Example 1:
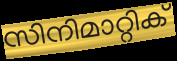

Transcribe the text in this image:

സിനിമാറ്റിക്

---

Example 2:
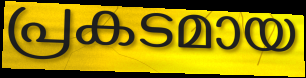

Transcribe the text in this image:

പ്രകടമായ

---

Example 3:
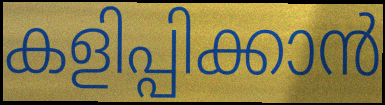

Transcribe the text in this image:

കളിപ്പിക്കാൻ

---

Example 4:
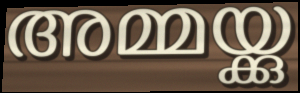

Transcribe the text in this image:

അമ്മയ്ക്കു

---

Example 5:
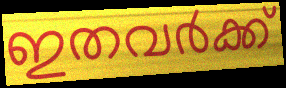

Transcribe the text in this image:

ഇതവർക്ക്